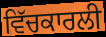
ਵਿੱਚਕਾਰਲੀ